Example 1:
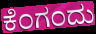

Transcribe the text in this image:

ಕೆಂಗಂದು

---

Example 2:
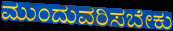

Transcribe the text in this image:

ಮುಂದುವರಿಸಬೇಕು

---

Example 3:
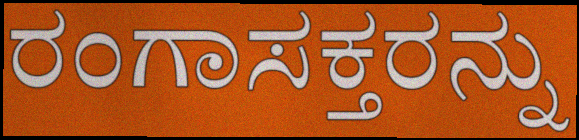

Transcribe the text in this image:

ರಂಗಾಸಕ್ತರನ್ನು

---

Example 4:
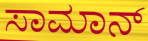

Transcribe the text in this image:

ಸಾಮಾನ್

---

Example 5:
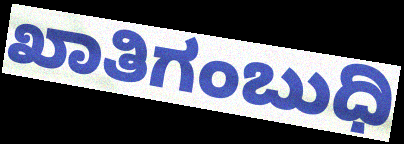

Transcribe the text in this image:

ಖಾತಿಗಂಬುಧಿ